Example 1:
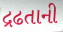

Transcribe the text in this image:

દ્રઢતાની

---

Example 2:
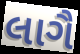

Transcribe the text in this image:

લાગૈ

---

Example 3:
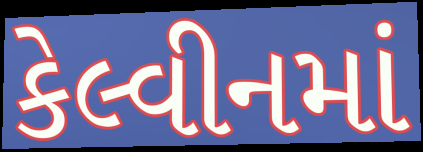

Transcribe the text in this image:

કેલ્વીનમાં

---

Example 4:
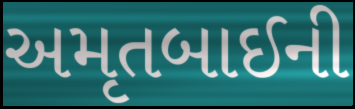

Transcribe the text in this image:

અમૃતબાઈની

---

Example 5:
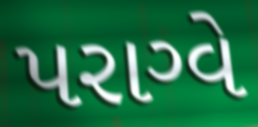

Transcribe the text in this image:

પરાગ્વે